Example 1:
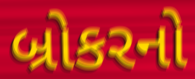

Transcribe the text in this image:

બ્રોકરનો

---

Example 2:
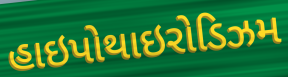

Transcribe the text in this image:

હાઇપોથાઇરોડિઝમ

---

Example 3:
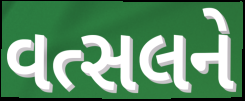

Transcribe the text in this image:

વત્સલને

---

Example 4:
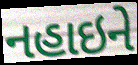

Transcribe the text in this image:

નહાઇને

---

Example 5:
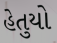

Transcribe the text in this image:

હેતુયો